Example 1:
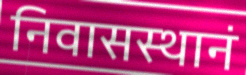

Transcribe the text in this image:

निवासस्थानं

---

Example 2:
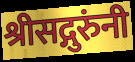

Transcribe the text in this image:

श्रीसद्गुरुंनी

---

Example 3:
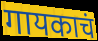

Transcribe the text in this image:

गायकाचं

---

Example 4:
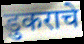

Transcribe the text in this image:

डुकराचे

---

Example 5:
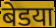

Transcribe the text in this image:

बेडया